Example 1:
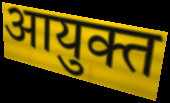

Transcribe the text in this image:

आयुक्‍त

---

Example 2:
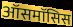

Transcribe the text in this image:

ऑसमॉसिस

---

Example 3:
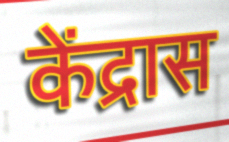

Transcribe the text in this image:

केंद्रास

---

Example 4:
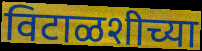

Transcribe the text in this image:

विटाळशीच्या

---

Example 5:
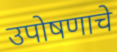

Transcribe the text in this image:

उपोषणाचे